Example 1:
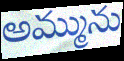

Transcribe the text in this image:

అమ్మును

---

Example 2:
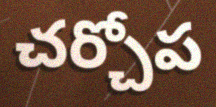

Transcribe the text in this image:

చర్చోప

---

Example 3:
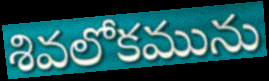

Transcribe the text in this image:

శివలోకమును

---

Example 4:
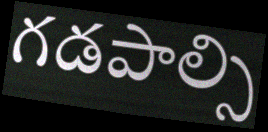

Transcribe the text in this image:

గడపాల్సి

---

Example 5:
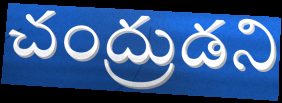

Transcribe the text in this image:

చంద్రుడని